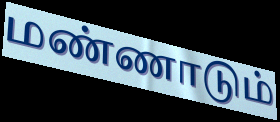
மண்ணாடும்